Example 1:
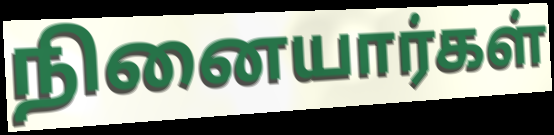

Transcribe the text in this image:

நினையார்கள்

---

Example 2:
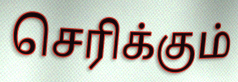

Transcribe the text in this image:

செரிக்கும்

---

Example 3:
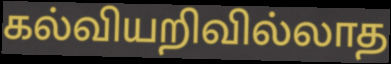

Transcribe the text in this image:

கல்வியறிவில்லாத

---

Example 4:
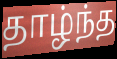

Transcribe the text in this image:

தாழ்ந்த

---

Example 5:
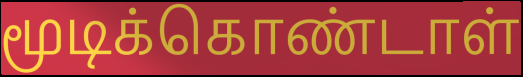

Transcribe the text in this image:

மூடிக்கொண்டாள்